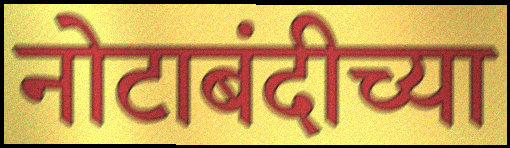
नोटाबंदीच्या